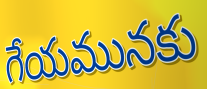
గేయమునకు